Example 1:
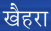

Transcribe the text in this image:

खैहरा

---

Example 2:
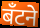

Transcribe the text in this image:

बँटने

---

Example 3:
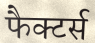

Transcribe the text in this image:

फैक्टर्स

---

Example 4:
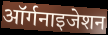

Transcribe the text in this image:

ऑर्गनाइजेशन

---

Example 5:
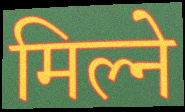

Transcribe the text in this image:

मिल्ने